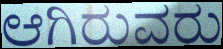
ಆಗಿರುವರು